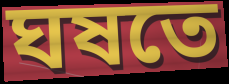
ঘষতে